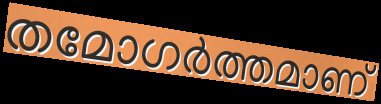
തമോഗർത്തമാണ്